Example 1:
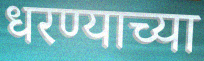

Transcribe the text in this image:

धरण्याच्या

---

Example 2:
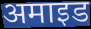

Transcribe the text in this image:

अमाइड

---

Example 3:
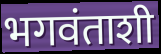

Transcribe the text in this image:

भगवंताशी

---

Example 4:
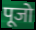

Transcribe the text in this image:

पूजो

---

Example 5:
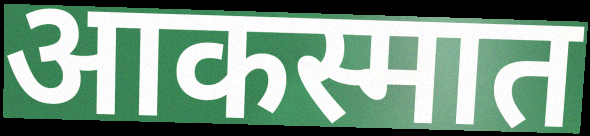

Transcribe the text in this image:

आकस्मात